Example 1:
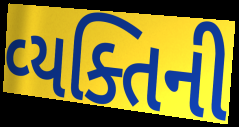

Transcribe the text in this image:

વ્‍યક્તિની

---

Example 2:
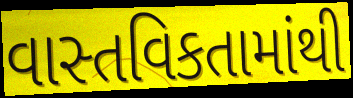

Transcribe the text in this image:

વાસ્તવિકતામાંથી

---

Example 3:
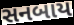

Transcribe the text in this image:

સનબાય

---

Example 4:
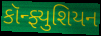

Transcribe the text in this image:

કૉન્ફ્યુશિયન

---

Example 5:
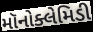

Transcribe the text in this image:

મૉનોક્લેમિડી